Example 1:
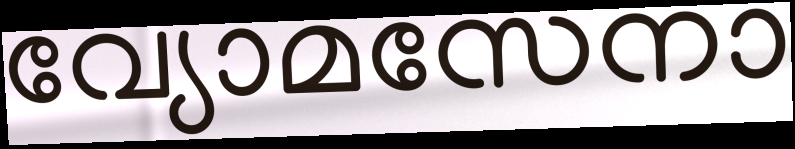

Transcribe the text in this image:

വ്യോമസേനാ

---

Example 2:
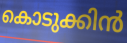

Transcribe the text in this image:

കൊടുക്കിൻ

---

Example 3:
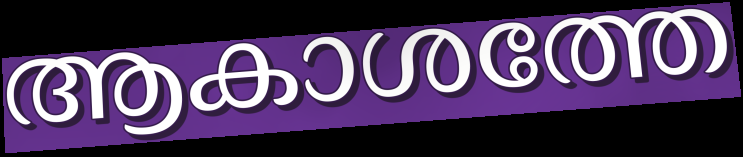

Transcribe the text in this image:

ആകാശത്തേ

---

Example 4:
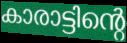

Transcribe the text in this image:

കാരാട്ടിന്റെ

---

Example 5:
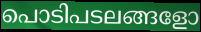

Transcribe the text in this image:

പൊടിപടലങ്ങളോ